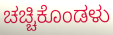
ಚಚ್ಚಿಕೊಂಡಳು